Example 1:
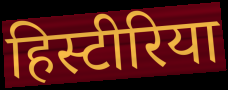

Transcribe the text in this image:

हिस्टीरिया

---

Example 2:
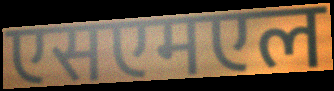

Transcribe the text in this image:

एसएमएल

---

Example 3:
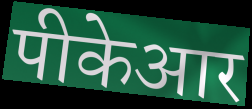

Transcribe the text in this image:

पीकेआर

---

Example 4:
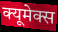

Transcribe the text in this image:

क्यूमेक्स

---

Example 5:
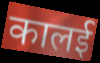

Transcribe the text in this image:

कालई